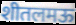
शीतलमऊ